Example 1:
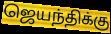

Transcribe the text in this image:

ஜெயந்திக்கு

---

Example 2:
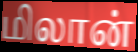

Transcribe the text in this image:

மிலான்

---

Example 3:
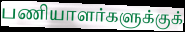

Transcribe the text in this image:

பணியாளர்களுக்குக்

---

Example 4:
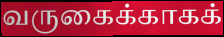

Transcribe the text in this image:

வருகைக்காகக்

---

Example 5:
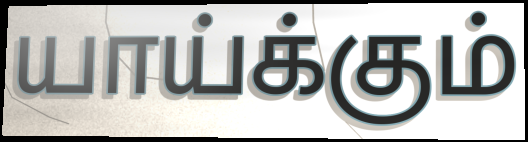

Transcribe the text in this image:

யாய்க்கும்